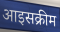
आइसक्रीम